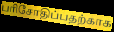
பரிசோதிப்பதற்காக